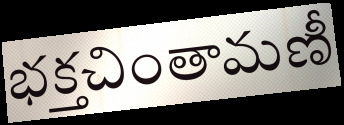
భక్తచింతామణీ